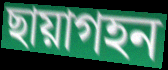
ছায়াগহন